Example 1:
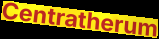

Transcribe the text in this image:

Centratherum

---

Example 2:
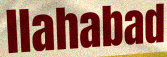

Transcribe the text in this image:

llahabad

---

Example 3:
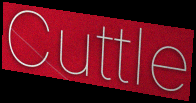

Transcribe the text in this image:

Cuttle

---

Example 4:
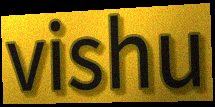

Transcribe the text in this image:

vishu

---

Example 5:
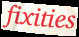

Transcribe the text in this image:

fixities